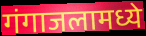
गंगाजलामध्ये